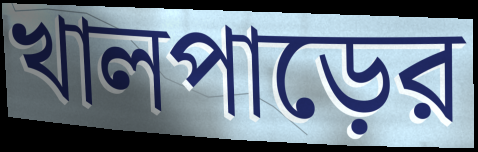
খালপাড়ের